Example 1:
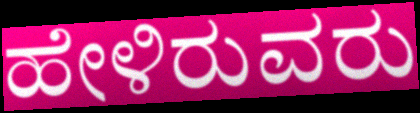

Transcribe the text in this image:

ಹೇಳಿರುವರು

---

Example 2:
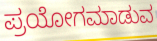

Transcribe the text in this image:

ಪ್ರಯೋಗಮಾಡುವ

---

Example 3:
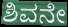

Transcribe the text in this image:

ಶಿವನೇ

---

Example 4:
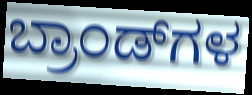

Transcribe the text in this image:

ಬ್ರಾಂಡ್‌ಗಳ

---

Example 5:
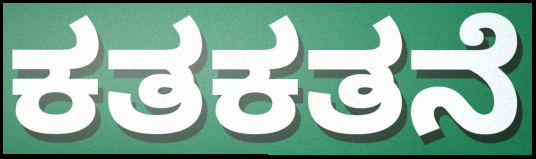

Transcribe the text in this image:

ಕತಕತನೆ